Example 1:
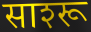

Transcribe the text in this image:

साश्रू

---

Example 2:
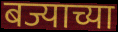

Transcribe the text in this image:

बज्याच्या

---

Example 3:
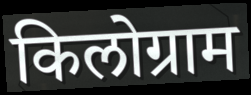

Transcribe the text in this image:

किलोग्राम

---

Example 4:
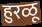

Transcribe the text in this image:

हुरळू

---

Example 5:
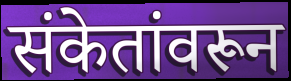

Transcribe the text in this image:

संकेतांवरून